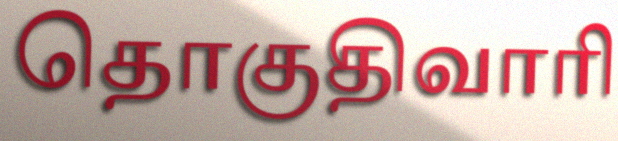
தொகுதிவாரி